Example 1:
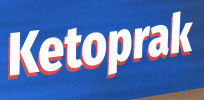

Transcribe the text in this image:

Ketoprak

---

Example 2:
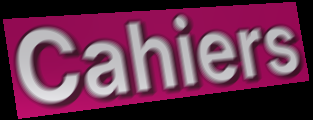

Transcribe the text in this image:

Cahiers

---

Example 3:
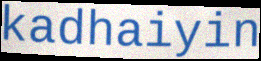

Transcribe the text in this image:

kadhaiyin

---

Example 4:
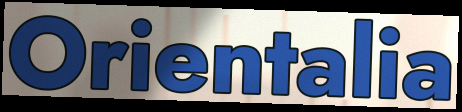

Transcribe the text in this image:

Orientalia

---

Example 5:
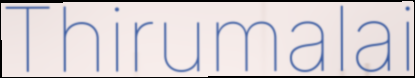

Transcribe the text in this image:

Thirumalai